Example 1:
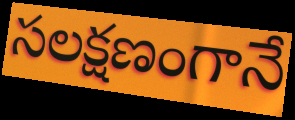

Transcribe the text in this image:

సలక్షణంగానే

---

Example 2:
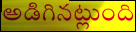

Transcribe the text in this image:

అడిగినట్లుంది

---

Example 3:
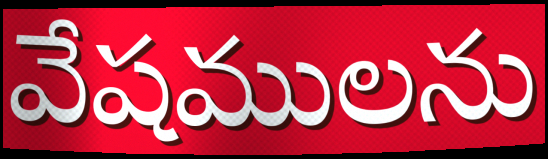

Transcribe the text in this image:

వేషములను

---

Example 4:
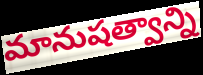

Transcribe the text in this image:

మానుషత్వాన్ని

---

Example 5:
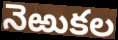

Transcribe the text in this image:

నెఱుకల